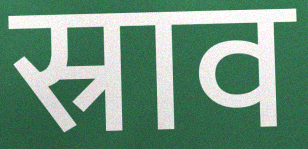
स्राव